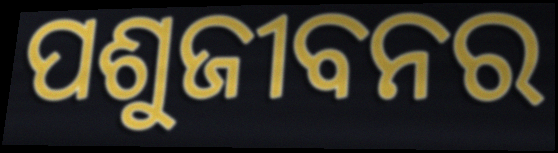
ପଶୁଜୀବନର